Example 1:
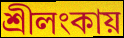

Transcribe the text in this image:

শ্রীলংকায়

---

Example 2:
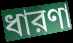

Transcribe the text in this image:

ধারণা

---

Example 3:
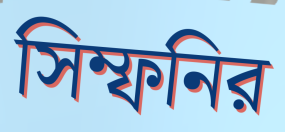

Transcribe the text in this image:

সিম্ফনির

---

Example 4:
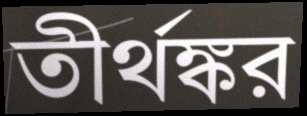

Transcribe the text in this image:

তীর্থঙ্কর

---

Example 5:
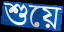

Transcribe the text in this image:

শুয়ে